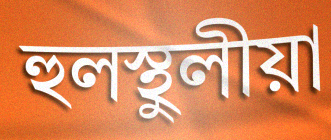
হুলস্থুলীয়া